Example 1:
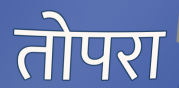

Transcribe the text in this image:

तोपरा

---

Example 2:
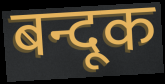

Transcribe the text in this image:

बन्दूक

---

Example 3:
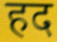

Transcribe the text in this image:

हद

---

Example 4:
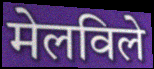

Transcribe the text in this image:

मेलविले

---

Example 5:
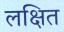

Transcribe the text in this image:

लक्षित